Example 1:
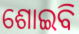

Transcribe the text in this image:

ଶୋଇବି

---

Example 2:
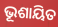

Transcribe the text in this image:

ଭୂଶାୟିତ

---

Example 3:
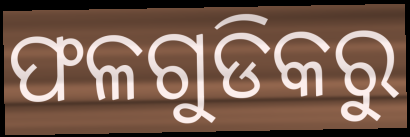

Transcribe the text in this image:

ଫଳଗୁଡିକରୁ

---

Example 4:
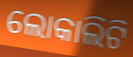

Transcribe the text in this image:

ଲୋକାଲିଟି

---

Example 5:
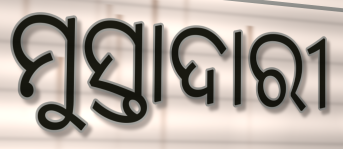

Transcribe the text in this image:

ମୁସ୍ତାଦାରୀ